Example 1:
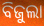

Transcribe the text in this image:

ବିଜୁଲା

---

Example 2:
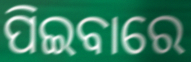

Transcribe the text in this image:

ପିଇବାରେ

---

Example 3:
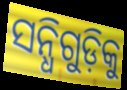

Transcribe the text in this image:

ସନ୍ଧିଗୁଡ଼ିକୁ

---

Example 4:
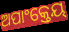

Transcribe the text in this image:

ଅପାଂକ୍ତେୟ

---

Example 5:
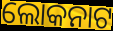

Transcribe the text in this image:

ଲୋକନାଟ